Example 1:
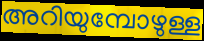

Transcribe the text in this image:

അറിയുമ്പോഴുള്ള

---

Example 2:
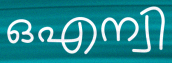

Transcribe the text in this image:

ഒഎന്വി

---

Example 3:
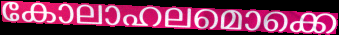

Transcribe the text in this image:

കോലാഹലമൊക്കെ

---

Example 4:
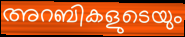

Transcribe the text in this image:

അറബികളുടെയും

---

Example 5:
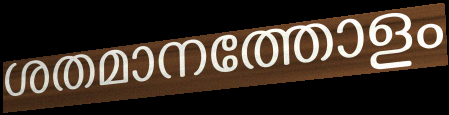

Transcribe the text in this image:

ശതമാനത്തോളം